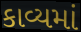
કાવ્યમાં